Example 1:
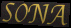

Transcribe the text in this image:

SONA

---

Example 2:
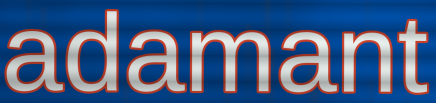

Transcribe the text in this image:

adamant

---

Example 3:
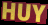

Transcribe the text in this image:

HUY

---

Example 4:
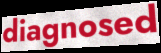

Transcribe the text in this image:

diagnosed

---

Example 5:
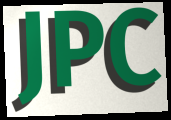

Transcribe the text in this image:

JPC